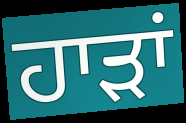
ਹਾੜਾਂ